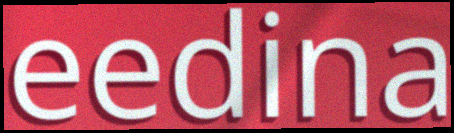
eedina